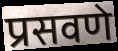
प्रसवणे